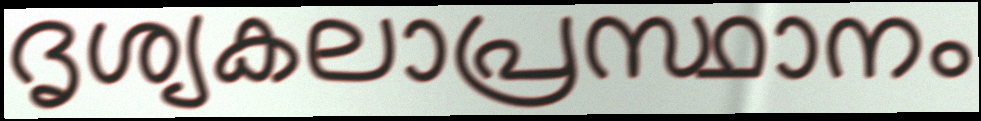
ദൃശ്യകലാപ്രസ്ഥാനം